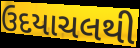
ઉદયાચલથી